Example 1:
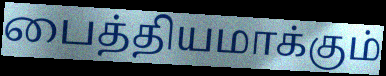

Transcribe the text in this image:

பைத்தியமாக்கும்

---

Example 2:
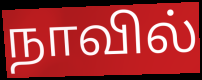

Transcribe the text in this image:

நாவில்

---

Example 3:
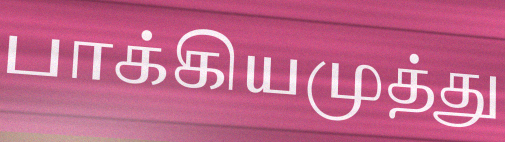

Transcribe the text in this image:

பாக்கியமுத்து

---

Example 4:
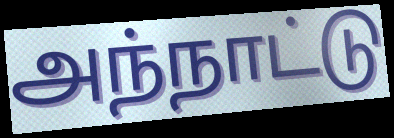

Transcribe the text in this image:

அந்நாட்டு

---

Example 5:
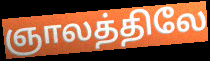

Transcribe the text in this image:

ஞாலத்திலே